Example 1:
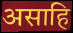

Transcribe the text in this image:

असाहि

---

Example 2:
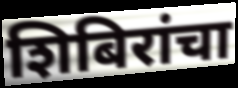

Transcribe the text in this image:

शिबिरांचा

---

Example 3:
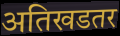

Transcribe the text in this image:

अतिखडतर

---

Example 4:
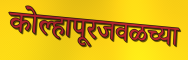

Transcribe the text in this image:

कोल्हापूरजवळच्या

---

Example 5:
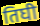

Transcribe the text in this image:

तिघी